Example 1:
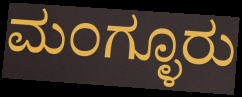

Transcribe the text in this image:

ಮಂಗ್ಳೂರು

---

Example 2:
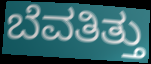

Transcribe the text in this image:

ಬೆವತಿತ್ತು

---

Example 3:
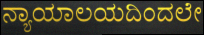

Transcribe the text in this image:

ನ್ಯಾಯಾಲಯದಿಂದಲೇ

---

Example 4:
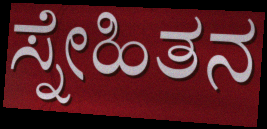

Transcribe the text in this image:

ಸ್ನೇಹಿತನ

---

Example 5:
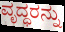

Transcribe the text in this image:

ವೃದ್ಧರನ್ನು